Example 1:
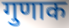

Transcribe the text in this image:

गुणाक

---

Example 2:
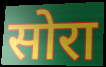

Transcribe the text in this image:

सोरा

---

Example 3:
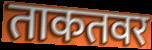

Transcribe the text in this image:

ताकतवर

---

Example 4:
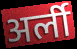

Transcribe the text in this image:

अर्ली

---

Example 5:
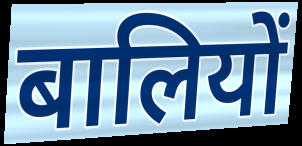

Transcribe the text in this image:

बालियों